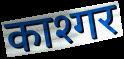
काश्गर